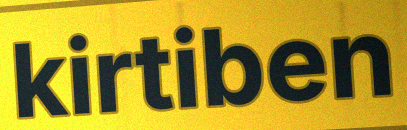
kirtiben